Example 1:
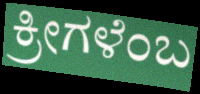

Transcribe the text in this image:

ಕ್ರೀಗಳೆಂಬ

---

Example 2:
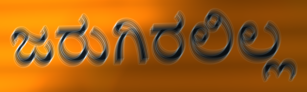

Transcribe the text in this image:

ಜರುಗಿರಲಿಲ್ಲ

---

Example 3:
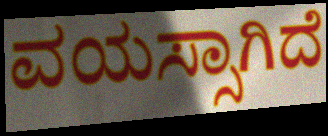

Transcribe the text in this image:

ವಯಸ್ಸಾಗಿದೆ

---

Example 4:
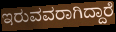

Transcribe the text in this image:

ಇರುವವರಾಗಿದ್ದಾರೆ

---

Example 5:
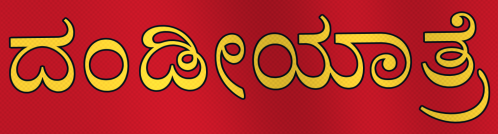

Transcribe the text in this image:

ದಂಡೀಯಾತ್ರೆ